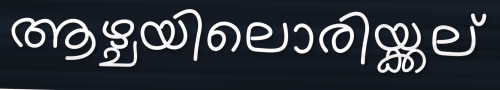
ആഴ്ചയിലൊരിയ്ക്കല്